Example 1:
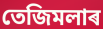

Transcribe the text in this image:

তেজিমলাৰ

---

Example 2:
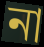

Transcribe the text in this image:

না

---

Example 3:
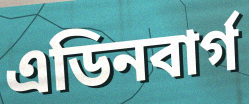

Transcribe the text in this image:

এডিনবাৰ্গ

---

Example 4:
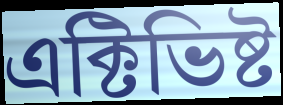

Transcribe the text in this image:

এক্টিভিষ্ট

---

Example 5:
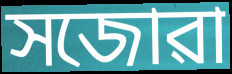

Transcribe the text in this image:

সজোৱা